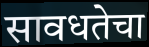
सावधतेचा